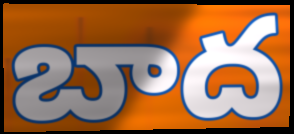
బాద